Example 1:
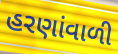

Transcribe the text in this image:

હરણાંવાળી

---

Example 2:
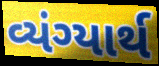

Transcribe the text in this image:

વ્યંગ્યાર્થ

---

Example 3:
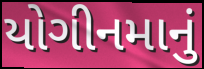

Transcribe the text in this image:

યોગીનમાનું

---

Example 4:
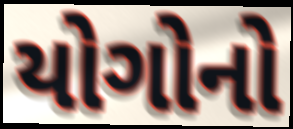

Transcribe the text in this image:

યોગોનો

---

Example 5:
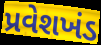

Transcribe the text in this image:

પ્રવેશખંડ